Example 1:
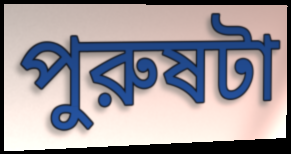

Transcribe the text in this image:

পুরুষটা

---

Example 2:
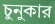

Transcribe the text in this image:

চুনুকার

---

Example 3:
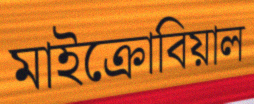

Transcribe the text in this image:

মাইক্রোবিয়াল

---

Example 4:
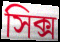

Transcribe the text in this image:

সিক্স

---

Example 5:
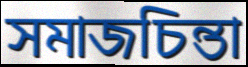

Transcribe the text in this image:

সমাজচিন্তা